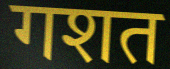
गशत